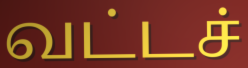
வட்டச்